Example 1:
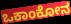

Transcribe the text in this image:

ಒಕಾಂಕೋನ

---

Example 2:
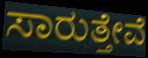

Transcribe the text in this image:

ಸಾರುತ್ತೇವೆ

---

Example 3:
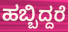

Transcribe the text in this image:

ಹಬ್ಬಿದ್ದರೆ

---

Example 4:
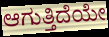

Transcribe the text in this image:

ಆಗುತ್ತಿದೆಯೇ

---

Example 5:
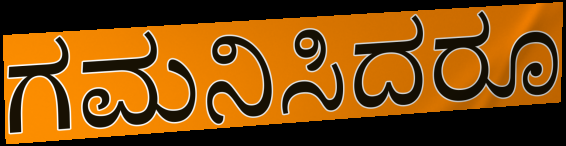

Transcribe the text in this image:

ಗಮನಿಸಿದರೂ